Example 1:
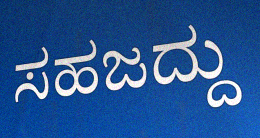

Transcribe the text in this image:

ಸಹಜದ್ದು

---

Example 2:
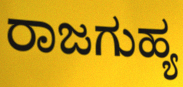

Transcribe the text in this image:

ರಾಜಗುಹ್ಯ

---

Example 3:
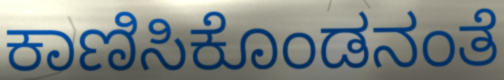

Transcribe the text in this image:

ಕಾಣಿಸಿಕೊಂಡನಂತೆ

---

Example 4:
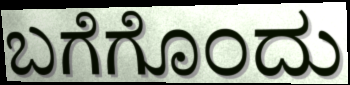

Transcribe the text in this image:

ಬಗೆಗೊಂದು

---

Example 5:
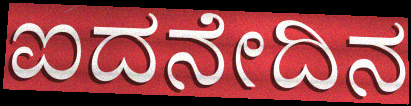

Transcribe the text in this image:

ಐದನೇದಿನ